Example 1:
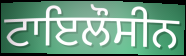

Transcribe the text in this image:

ਟਾਇਲੌਸੀਨ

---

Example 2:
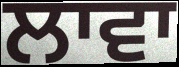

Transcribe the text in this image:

ਲਾਵਾ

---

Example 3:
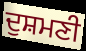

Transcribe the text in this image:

ਦੁਸ਼ਮਣੀ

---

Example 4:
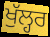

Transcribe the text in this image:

ਖੁੱਲ੍ਹਰ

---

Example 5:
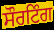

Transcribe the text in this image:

ਸੌਰਟਿੰਗ